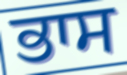
ਭਾਸ